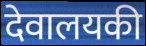
देवालयकी